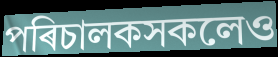
পৰিচালকসকলেও